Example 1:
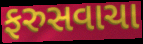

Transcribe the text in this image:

ફરુસવાચા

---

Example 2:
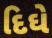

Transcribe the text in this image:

દિઘે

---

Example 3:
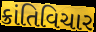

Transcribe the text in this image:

ક્રાંતિવિચાર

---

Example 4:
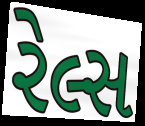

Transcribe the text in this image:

રેલ્સ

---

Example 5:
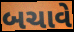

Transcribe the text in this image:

બચાવે